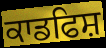
ਕਾਡਫਿਸ਼